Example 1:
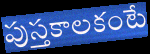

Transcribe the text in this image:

పుస్తకాలకంటే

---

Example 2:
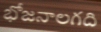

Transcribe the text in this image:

భోజనాలగది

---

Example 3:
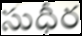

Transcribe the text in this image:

సుధీర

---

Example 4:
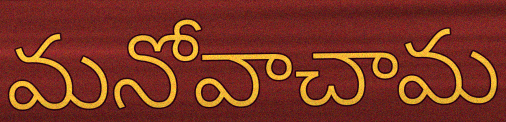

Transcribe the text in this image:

మనోవాచామ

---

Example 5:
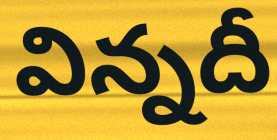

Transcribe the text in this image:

విన్నదీ